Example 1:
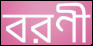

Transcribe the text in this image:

বরণী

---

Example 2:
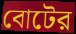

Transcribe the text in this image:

বোটের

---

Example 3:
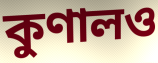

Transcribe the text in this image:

কুণালও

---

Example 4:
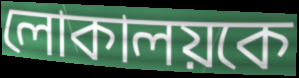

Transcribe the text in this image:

লোকালয়কে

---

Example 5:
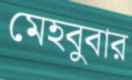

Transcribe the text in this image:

মেহবুবার